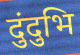
दुंदुभि